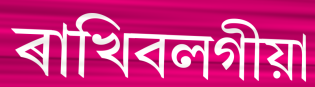
ৰাখিবলগীয়া